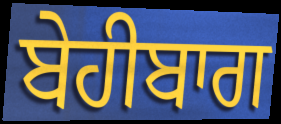
ਬੇਹੀਬਾਗ